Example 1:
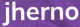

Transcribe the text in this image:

jherno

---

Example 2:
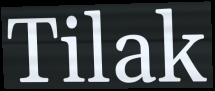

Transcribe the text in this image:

Tilak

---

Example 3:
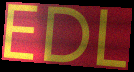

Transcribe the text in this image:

EDL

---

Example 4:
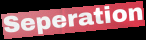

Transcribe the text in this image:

Seperation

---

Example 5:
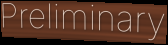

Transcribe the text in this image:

Preliminary